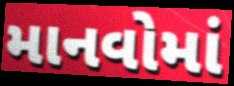
માનવોમાં